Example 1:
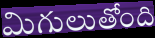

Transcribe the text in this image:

మిగులుతోంది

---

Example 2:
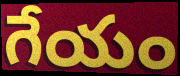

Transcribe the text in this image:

గేయం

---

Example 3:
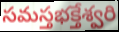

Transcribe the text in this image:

సమస్తభక్తేశ్వరి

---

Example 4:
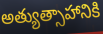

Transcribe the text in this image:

అత్యుత్సాహానికి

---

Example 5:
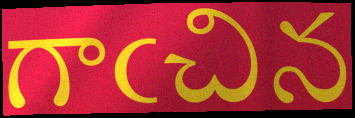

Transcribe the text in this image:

గాఁచిన